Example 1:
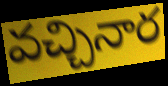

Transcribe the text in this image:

వచ్చినార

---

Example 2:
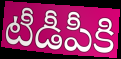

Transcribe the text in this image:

టీడీపీకి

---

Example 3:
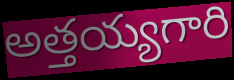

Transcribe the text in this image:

అత్తయ్యగారి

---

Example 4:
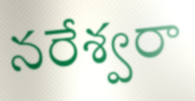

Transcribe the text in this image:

నరేశ్వరా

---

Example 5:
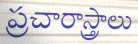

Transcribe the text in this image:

ప్రచారాస్త్రాలు